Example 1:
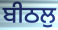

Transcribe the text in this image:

ਬੀਠਲੁ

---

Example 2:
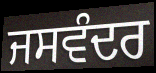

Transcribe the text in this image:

ਜਸਵੰਦਰ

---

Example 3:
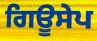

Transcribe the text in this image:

ਗਿਊਸੇਪ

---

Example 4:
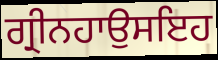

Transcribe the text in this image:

ਗ੍ਰੀਨਹਾਉਸਇਹ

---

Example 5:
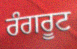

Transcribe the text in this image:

ਰੰਗਰੂਟ